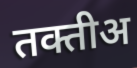
तक्तीअ